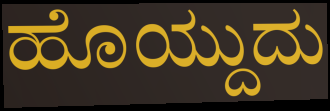
ಹೊಯ್ದುದು